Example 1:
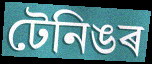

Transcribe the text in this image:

টেনিঙৰ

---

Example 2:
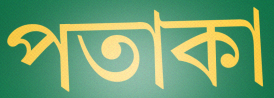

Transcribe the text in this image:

পতাকা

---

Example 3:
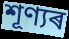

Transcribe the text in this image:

শূণ্যৰ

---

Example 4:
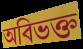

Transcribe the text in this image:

অবিভক্ত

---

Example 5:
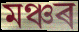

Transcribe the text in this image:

মঞ্চৰ